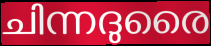
ചിന്നദുരൈ